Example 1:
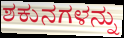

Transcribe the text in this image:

ಶಕುನಗಳನ್ನು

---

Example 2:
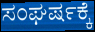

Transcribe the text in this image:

ಸಂಘರ್ಷಕ್ಕೆ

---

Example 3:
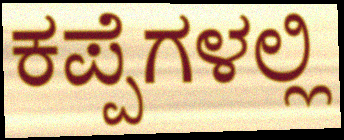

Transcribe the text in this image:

ಕಪ್ಪೆಗಳಲ್ಲಿ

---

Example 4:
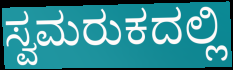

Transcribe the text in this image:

ಸ್ವಮರುಕದಲ್ಲಿ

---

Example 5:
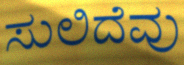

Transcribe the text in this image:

ಸುಲಿದೆವು